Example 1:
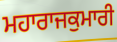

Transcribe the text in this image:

ਮਹਾਰਾਜਕੁਮਾਰੀ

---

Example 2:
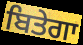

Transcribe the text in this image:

ਬਿਤੇਗਾ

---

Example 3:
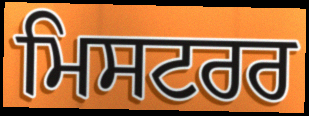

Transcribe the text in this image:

ਮਿਸਟਰਰ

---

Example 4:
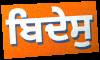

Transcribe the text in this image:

ਬਿਦੇਸੁ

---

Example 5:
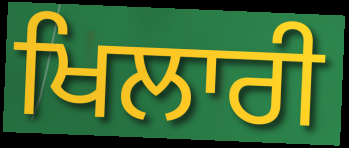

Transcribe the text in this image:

ਖਿਲਾਰੀ